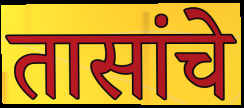
तासांचे